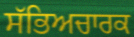
ਸੱਭਿਅਚਾਰਕ